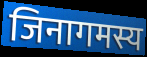
जिनागमस्य